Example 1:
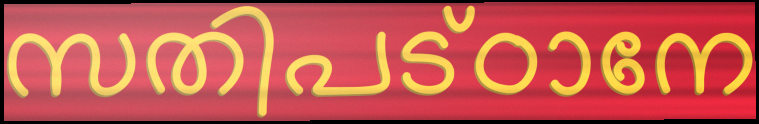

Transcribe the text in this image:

സതിപട്ഠാനേ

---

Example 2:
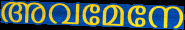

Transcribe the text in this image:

അവമേനേ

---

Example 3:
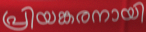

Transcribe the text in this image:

പ്രിയങ്കരനായി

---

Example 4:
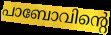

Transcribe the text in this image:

പാബോവിന്റെ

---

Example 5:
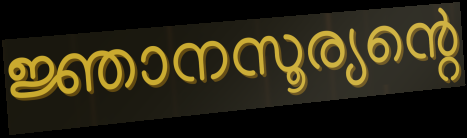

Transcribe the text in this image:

ജ്ഞാനസൂര്യന്റെ